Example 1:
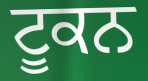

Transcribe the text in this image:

ਟੂਕਨ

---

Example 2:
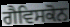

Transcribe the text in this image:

ਗੈਵਿਸਕੋਨ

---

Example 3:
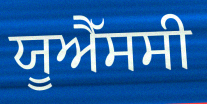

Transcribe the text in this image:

ਯੂਐੱਸਸੀ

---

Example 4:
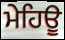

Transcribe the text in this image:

ਮੇਹਿਊ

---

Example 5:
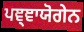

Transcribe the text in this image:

ਪਞ੍ਞਾਯੋਗੇਨ